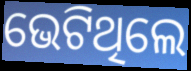
ଭେଟିଥିଲେ